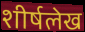
शीर्षलेख